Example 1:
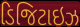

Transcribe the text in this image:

ડિજિટાઇઝ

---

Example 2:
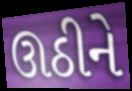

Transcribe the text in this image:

ઊઠીને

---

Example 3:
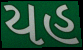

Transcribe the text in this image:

યહ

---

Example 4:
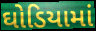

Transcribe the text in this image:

ઘોડિયામાં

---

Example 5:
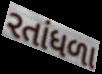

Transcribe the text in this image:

રતાંધળા